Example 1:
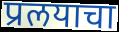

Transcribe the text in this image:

प्रलयाचा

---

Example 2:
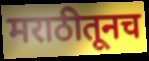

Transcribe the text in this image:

मराठीतूनच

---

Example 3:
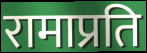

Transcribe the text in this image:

रामाप्रति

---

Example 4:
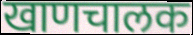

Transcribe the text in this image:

खाणचालक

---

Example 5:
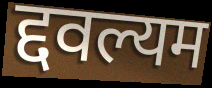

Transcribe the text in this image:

द्दवल्यम